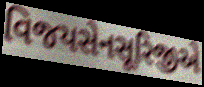
વિજયસેનસૂરિજીએ